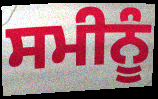
ਸਮੀਨੂੰ